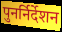
पुनर्निर्देशन